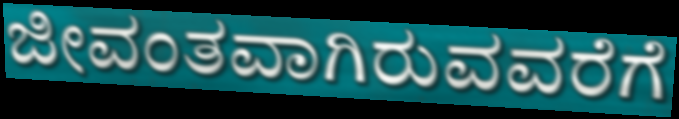
ಜೀವಂತವಾಗಿರುವವರೆಗೆ